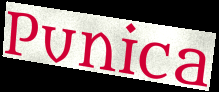
Punica